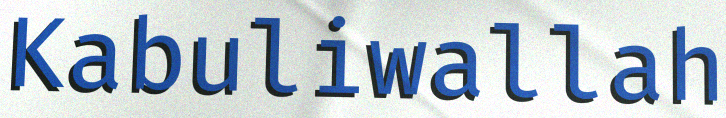
Kabuliwallah